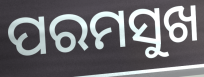
ପରମସୁଖ